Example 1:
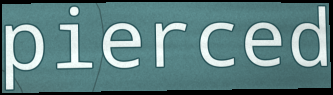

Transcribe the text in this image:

pierced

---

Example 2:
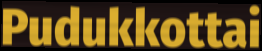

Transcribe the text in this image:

Pudukkottai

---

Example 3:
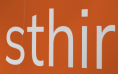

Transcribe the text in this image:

sthir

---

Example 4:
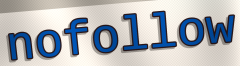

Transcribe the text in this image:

nofollow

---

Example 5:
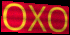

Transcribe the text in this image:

OXO